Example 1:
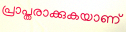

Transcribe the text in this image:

പ്രാപ്തരാക്കുകയാണ്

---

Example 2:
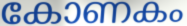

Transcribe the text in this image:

കോണകം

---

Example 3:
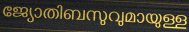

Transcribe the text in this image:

ജ്യോതിബസുവുമായുള്ള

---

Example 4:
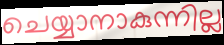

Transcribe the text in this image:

ചെയ്യാനാകുന്നില്ല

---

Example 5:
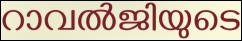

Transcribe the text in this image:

റാവൽജിയുടെ